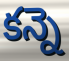
కన్నె